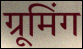
ग्रूमिंग